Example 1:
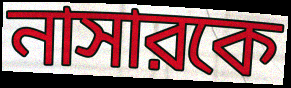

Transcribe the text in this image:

নাসারকে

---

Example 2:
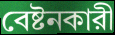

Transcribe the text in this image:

বেষ্টনকারী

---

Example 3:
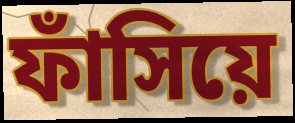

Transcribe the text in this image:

ফাঁসিয়ে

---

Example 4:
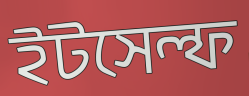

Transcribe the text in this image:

ইটসেল্ফ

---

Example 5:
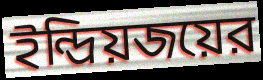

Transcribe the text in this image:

ইন্দ্রিয়জয়ের